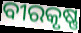
ବୀରକୃଷ୍ଣ